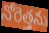
నోరెత్తను